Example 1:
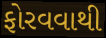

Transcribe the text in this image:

ફોરવવાથી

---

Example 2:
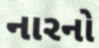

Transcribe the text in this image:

નારનો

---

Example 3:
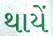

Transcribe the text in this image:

થાયેં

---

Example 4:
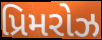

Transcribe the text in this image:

પ્રિમરોઝ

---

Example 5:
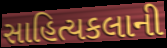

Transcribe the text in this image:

સાહિત્યકલાની